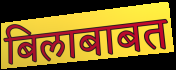
बिलाबाबत